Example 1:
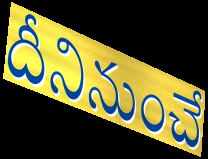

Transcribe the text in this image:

దీనినుంచే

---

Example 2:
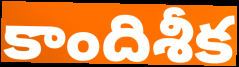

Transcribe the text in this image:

కాందిశీక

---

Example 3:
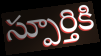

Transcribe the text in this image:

స్పూర్తికి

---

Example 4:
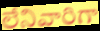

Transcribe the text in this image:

లేనివారిగా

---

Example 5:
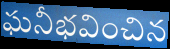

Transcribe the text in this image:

ఘనీభవించిన